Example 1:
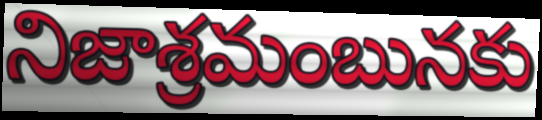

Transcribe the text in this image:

నిజాశ్రమంబునకు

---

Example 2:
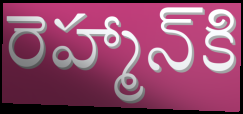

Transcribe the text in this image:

రెహ్మాన్‌కి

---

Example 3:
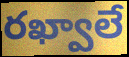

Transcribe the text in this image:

రఖ్వాలే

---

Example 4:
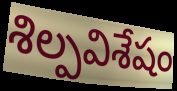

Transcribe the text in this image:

శిల్పవిశేషం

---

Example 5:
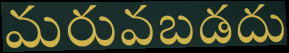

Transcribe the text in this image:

మరువబడదు